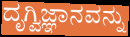
ದೃಗ್ವಿಜ್ಞಾನವನ್ನು